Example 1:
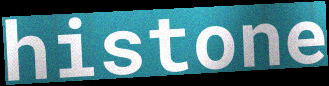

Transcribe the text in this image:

histone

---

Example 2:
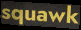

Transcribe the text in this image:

squawk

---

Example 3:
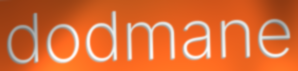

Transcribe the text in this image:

dodmane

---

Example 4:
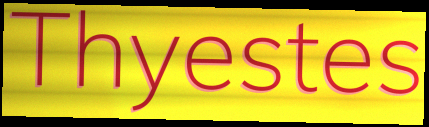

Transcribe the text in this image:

Thyestes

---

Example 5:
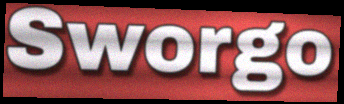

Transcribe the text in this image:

Sworgo